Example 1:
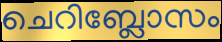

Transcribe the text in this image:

ചെറിബ്ലോസം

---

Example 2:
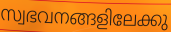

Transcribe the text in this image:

സ്വഭവനങ്ങളിലേക്കു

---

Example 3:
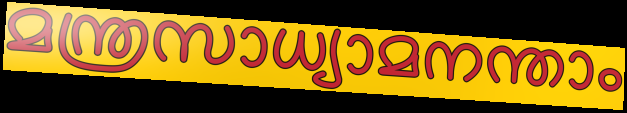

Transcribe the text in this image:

മന്ത്രസാധ്യാമനന്താം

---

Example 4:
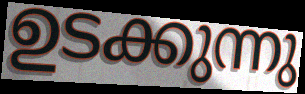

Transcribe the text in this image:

ഉടക്കുന്നു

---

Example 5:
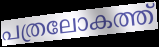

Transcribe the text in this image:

പത്രലോകത്ത്